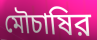
মৌচাষির